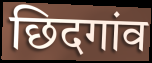
छिदगांव